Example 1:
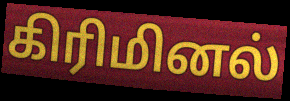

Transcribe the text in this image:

கிரிமினல்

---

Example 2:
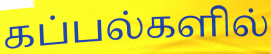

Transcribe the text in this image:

கப்பல்களில்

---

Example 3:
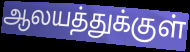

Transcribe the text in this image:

ஆலயத்துக்குள்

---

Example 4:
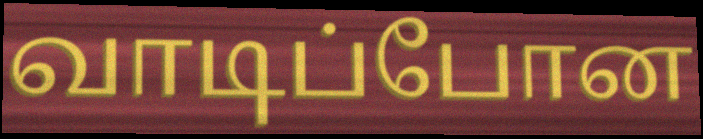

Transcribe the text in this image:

வாடிப்போன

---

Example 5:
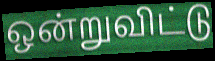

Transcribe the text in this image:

ஒன்றுவிட்டு